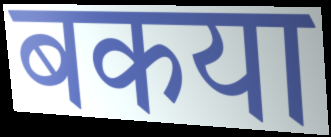
बकया